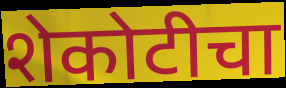
शेकोटीचा